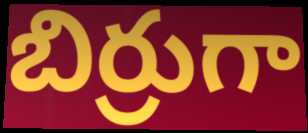
బిర్రుగా